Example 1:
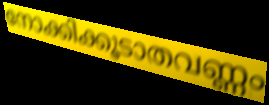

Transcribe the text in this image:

നോക്കിക്കൂടാതവണ്ണം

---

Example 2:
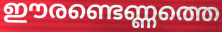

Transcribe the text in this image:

ഈരണ്ടെണ്ണത്തെ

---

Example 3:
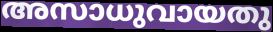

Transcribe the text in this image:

അസാധുവായതു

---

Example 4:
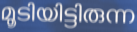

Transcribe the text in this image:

മൂടിയിട്ടിരുന്ന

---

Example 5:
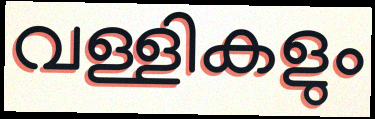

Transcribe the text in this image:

വള്ളികളും